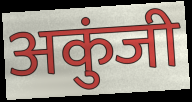
अकुंजी